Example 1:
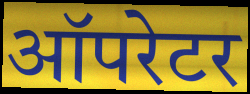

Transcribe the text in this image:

ऑपरेटर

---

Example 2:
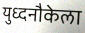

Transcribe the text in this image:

युध्दनौकेला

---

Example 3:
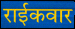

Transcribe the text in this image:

राईकवार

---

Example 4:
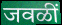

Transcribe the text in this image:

जवळीं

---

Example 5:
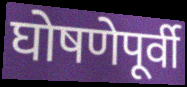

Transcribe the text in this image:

घोषणेपूर्वी